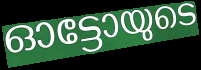
ഓട്ടോയുടെ